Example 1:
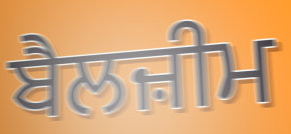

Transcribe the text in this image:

ਬੈਲਜ਼ੀਮ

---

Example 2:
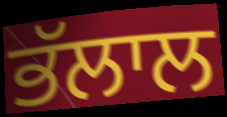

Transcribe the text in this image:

ਭੱਲਾਲ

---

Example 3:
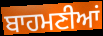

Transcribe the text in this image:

ਬਾਹਮਣੀਆਂ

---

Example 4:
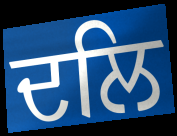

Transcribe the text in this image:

ਦਲਿ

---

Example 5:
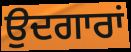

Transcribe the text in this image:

ਉਦਗਾਰਾਂ